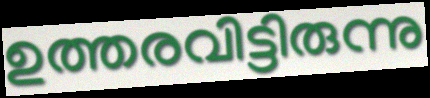
ഉത്തരവിട്ടിരുന്നു